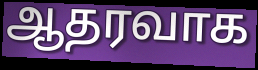
ஆதரவாக